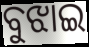
ବୁଝାଇ